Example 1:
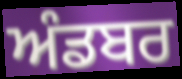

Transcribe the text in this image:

ਅੰਡਬਰ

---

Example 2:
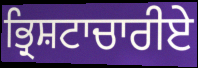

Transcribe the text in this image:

ਭ੍ਰਿਸ਼ਟਾਚਾਰੀਏ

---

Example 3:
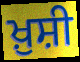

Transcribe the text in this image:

ਖ਼ੁਸ਼ੀ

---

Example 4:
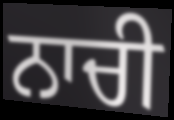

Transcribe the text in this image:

ਨਾਚੀ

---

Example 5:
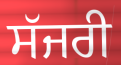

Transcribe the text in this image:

ਸੱਜਰੀ